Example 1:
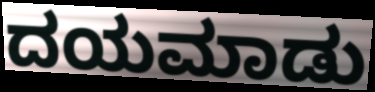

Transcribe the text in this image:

ದಯಮಾಡು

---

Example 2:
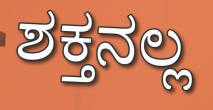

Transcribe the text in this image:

ಶಕ್ತನಲ್ಲ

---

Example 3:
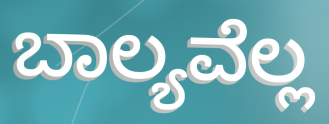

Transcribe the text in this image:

ಬಾಲ್ಯವೆಲ್ಲ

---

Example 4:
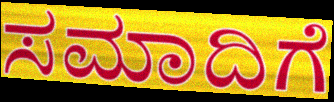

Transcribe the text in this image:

ಸಮಾದಿಗೆ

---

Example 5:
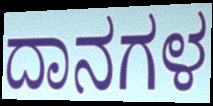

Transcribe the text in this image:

ದಾನಗಳ